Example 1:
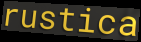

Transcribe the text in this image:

rustica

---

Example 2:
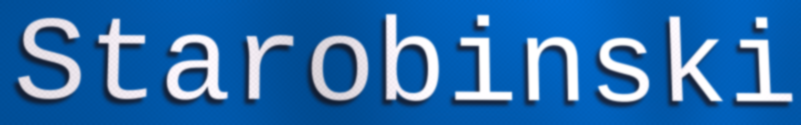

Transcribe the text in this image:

Starobinski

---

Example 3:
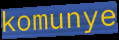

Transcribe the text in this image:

komunye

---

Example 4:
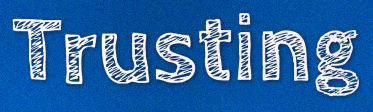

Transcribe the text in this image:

Trusting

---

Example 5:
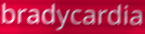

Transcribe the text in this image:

bradycardia